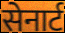
सेनार्ट